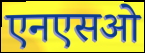
एनएसओ